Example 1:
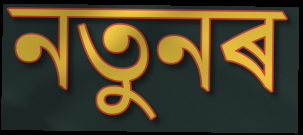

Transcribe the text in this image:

নতুনৰ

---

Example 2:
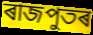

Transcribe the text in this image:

ৰাজপুতৰ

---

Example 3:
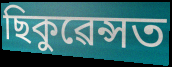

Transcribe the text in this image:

ছিকুৱেন্সত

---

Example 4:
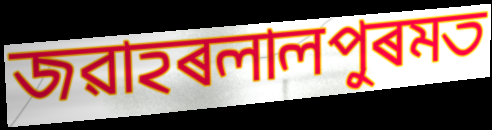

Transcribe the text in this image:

জৱাহৰলালপুৰমত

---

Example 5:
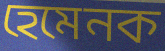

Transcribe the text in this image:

হেমেনক